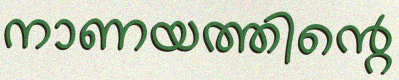
നാണയത്തിന്റെ